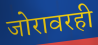
जोरावरही